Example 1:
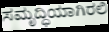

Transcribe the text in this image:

ಸಮೃದ್ಧಿಯಾಗಿರಲಿ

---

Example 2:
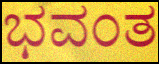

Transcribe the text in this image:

ಭವಂತ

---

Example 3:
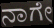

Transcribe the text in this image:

ನಾಗೇ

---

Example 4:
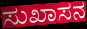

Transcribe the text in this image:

ಸುಖಾಸನ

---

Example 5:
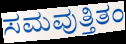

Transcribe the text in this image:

ಸಮವುತ್ತಿತಂ